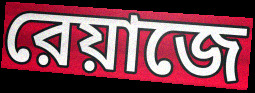
রেয়াজে